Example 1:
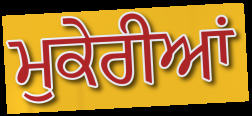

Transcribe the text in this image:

ਮੁਕੇਰੀਆਂ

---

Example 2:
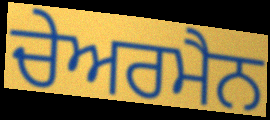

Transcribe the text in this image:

ਚੇਅਰਮੈਨ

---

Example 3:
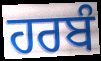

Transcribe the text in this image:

ਹਰਬੰ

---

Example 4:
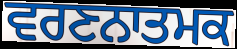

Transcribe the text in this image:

ਵਰਣਨਾਤਮਕ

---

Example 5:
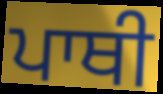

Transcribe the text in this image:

ਪਾਥੀ